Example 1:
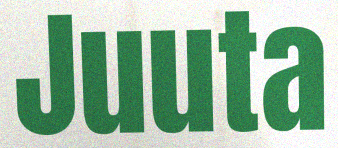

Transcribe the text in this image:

Juuta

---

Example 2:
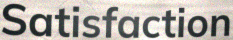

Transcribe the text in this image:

Satisfaction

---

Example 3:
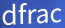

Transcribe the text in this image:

dfrac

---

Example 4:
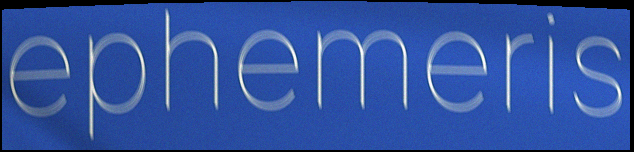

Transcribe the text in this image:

ephemeris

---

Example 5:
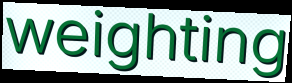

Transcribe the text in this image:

weighting